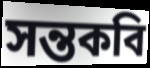
সন্তকবি